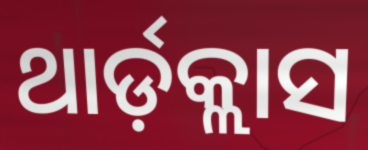
ଥାର୍ଡ଼କ୍ଲାସ